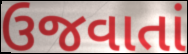
ઉજવાતાં